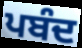
ਪਬੰਦ